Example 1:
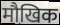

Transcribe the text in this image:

मौखिक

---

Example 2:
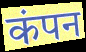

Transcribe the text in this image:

कंपन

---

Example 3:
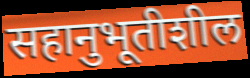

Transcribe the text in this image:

सहानुभूतीशील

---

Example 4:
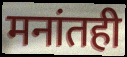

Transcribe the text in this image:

मनांतही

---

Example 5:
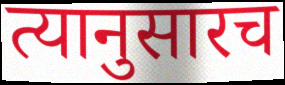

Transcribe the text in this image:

त्यानुसारच